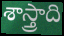
శాస్త్రాది